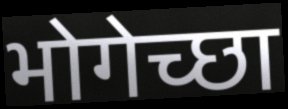
भोगेच्छा